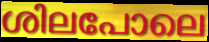
ശിലപോലെ